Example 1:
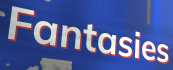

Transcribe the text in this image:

Fantasies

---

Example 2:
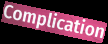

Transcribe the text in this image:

Complication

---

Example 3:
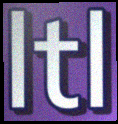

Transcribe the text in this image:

ltl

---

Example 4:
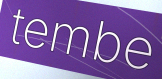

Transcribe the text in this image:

tembe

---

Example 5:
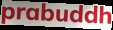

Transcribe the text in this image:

prabuddh